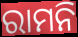
ରାମନି